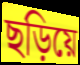
ছড়িয়ে